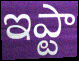
ఇప్టా